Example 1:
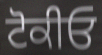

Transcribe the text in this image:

ਟੋਕੀਓ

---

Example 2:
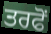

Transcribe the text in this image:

ਤਰਫੋਂ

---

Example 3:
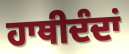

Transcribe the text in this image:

ਹਾਥੀਦੰਦਾਂ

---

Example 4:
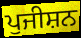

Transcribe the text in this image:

ਪੁਜੀਸ਼ਨ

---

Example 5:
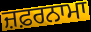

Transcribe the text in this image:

ਜ਼ਫ਼ਰਨਾਮਾ